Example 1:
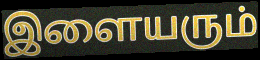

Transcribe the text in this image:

இளையரும்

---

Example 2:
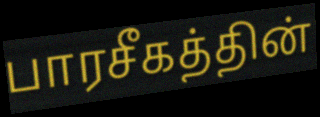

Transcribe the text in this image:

பாரசீகத்தின்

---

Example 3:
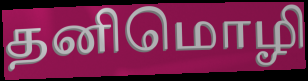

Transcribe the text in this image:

தனிமொழி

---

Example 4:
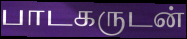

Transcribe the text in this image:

பாடகருடன்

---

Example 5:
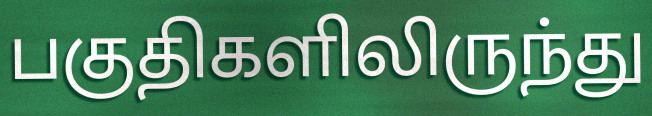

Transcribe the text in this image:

பகுதிகளிலிருந்து